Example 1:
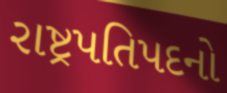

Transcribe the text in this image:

રાષ્ટ્રપતિપદનો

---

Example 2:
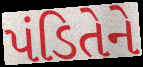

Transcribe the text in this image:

પંડિતેને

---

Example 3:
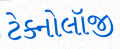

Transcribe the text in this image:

ટેક્નોલૉજી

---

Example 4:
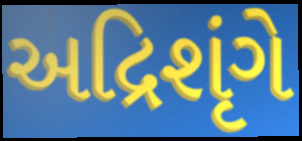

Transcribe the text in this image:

અદ્રિશૃંગે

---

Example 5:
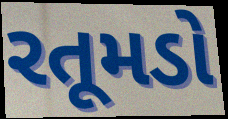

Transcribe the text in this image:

રતૂમડો